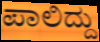
ಪಾಲಿದ್ದು